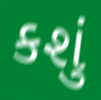
કશું